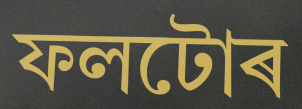
ফলটোৰ